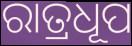
ରାତ୍ରଧୂପ